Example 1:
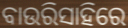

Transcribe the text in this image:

ବାଉରିସାହିରେ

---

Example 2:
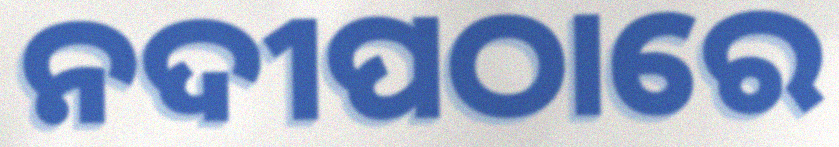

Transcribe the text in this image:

ନଦୀପଠାରେ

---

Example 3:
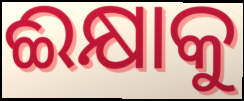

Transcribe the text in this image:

ଈକ୍ଷାକୁ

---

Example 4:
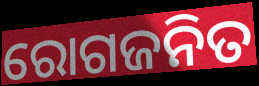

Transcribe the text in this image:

ରୋଗଜନିତ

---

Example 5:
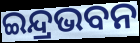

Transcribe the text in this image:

ଇନ୍ଦ୍ରଭବନ